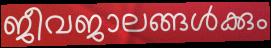
ജീവജാലങ്ങൾക്കും